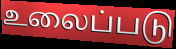
உலைப்படு